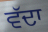
ਵੱਦਾ